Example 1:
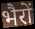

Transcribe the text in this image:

भैरों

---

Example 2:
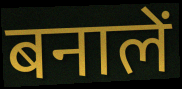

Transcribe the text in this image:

बनालें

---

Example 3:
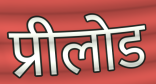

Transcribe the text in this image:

प्रीलोड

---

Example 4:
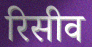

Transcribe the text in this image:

रिसीव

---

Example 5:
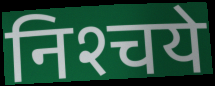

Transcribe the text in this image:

निश्चये